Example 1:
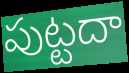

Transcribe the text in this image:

పుట్టదా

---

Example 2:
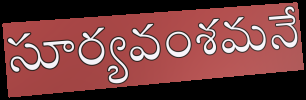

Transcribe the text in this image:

సూర్యవంశమనే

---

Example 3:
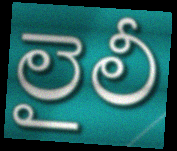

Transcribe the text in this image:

లైలీ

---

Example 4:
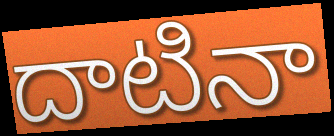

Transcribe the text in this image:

దాటినా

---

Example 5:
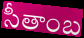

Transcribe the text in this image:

సీతాంబ